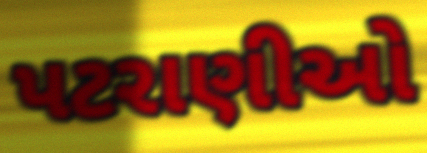
પટરાણીઓ